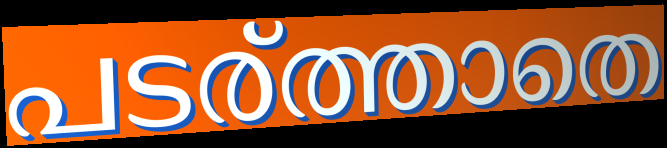
പടര്ത്താതെ